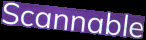
Scannable